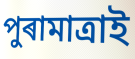
পুৰামাত্ৰাই